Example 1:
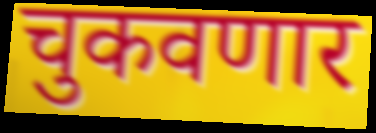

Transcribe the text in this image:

चुकवणार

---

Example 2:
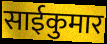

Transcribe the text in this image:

साईकुमार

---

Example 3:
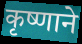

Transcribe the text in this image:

कृष्णाने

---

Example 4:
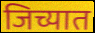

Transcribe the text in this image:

जिच्यात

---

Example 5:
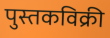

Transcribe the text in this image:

पुस्तकविक्री